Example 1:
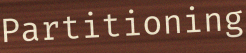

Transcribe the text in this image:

Partitioning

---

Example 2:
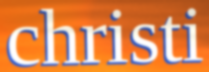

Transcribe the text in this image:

christi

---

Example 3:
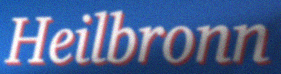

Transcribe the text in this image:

Heilbronn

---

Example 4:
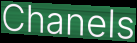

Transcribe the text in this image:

Chanels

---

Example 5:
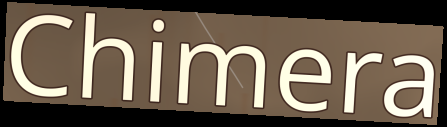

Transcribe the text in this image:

Chimera